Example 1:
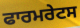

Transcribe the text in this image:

ਫਾਰਮਰੇਟਸ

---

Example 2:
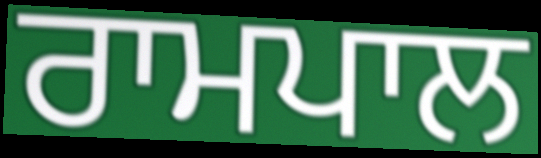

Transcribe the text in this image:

ਰਾਮਪਾਲ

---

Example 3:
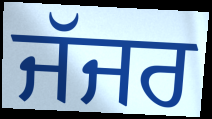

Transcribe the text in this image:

ਜੱਜਰ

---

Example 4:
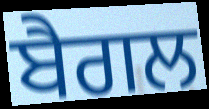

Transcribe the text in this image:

ਬੈਗਲ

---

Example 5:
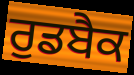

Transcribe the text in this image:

ਰੁਡਬੈਕ